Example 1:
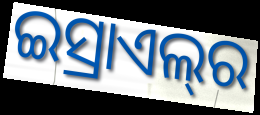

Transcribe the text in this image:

ଇସ୍ରାଏଲ୍‌ର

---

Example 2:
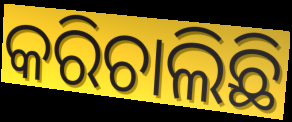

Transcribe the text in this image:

କରିଚାଲିଛି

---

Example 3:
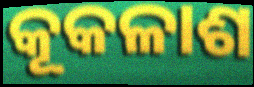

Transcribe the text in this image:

କୂକଳାଶ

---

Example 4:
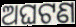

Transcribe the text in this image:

ଅଘଟଣ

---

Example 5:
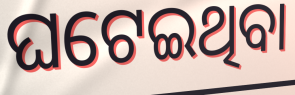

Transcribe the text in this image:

ଘଟେଇଥିବା